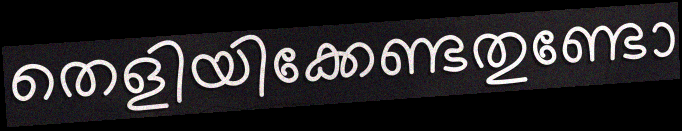
തെളിയിക്കേണ്ടതുണ്ടോ